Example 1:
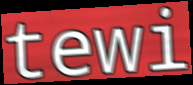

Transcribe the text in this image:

tewi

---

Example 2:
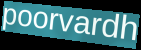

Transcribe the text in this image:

poorvardh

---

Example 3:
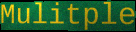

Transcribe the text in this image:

Mulitple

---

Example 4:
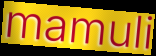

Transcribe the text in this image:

mamuli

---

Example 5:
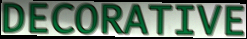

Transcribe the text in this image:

DECORATIVE